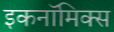
इकनॉमिक्स